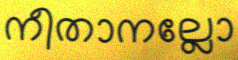
നീതാനല്ലോ